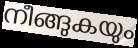
നീങ്ങുകയും